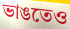
ভাঙতেও